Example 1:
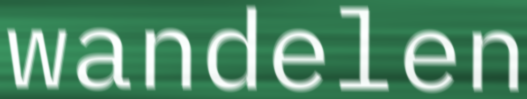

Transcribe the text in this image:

wandelen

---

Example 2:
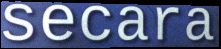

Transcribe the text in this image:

secara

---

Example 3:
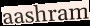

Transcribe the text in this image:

aashram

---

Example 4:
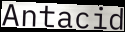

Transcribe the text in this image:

Antacid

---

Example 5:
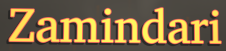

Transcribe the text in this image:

Zamindari